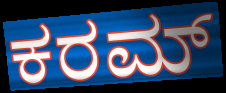
ಕರಮ್